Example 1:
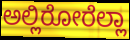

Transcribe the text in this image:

ಅಲ್ಲಿರೋರೆಲ್ಲಾ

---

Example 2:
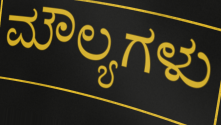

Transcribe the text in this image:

ಮೌಲ್ಯಗಳು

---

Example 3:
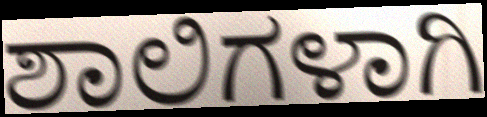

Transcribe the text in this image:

ಶಾಲಿಗಳಾಗಿ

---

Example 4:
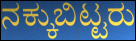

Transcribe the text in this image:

ನಕ್ಕುಬಿಟ್ಟರು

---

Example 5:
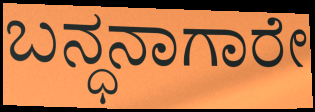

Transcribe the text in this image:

ಬನ್ಧನಾಗಾರೇ